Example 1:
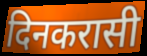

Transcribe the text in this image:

दिनकरासी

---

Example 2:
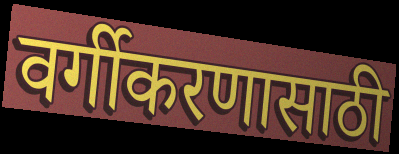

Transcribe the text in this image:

वर्गीकरणासाठी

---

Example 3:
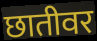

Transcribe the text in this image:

छातीवर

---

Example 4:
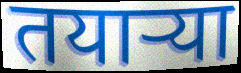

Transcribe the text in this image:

तयाऱ्या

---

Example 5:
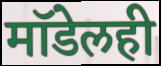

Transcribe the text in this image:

मॉडेलही